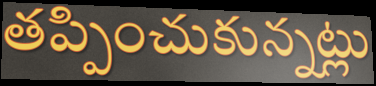
తప్పించుకున్నట్లు